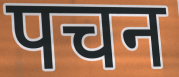
पचन